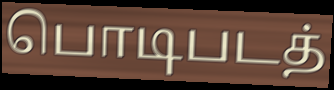
பொடிபடத்